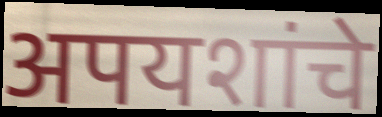
अपयशांचे